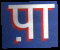
प़ा